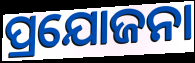
ପ୍ରଯୋଜନା